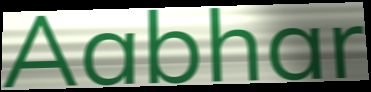
Aabhar